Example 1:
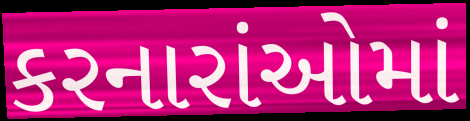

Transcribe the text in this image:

કરનારાંઓમાં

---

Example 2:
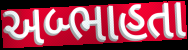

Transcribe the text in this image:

અબ્ભાહતા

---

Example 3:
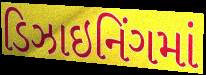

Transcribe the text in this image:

ડિઝાઇનિંગમાં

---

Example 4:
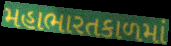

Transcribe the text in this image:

મહાભારતકાળમાં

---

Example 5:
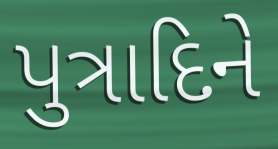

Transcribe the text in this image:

પુત્રાદિને